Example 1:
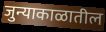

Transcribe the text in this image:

जुन्याकाळातील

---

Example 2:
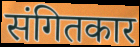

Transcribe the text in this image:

संगितकार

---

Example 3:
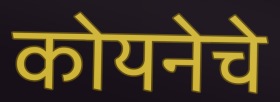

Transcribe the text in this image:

कोयनेचे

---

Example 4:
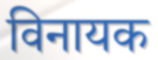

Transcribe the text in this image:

विनायक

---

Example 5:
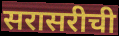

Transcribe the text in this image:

सरासरीची